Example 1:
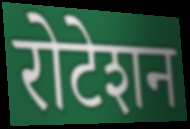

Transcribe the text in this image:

रोटेशन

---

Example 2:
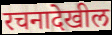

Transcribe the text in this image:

रचनादेखील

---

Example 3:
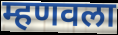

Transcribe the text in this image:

म्हणवला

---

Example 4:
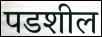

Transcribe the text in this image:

पडशील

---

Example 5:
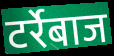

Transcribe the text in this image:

टर्रेबाज